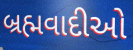
બ્રહ્મવાદીઓ